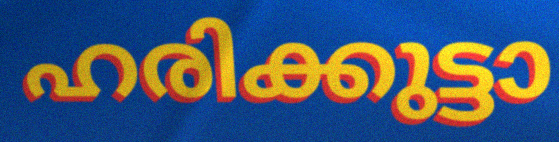
ഹരിക്കുട്ടാ